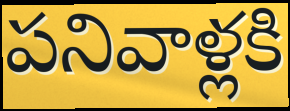
పనివాళ్లకి